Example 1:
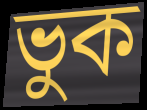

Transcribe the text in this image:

ভুক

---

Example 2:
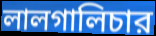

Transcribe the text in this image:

লালগালিচার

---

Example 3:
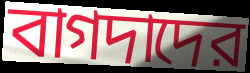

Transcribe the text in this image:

বাগদাদের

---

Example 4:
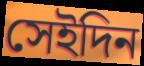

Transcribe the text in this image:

সেইদিন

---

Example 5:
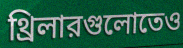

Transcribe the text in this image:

থ্রিলারগুলোতেও